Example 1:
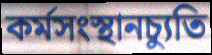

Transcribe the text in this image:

কর্মসংস্থানচ্যুতি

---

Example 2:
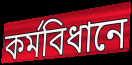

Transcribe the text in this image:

কর্মবিধানে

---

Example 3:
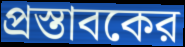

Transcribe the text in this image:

প্রস্তাবকের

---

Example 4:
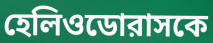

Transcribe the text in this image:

হেলিওডোরাসকে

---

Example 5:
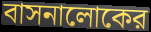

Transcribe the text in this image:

বাসনালোকের